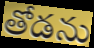
తోడను